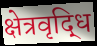
क्षेत्रवृद्धि